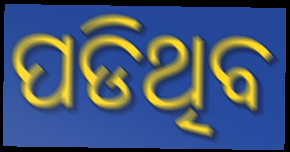
ପଡିଥିବ